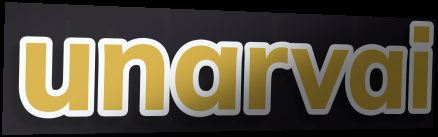
unarvai